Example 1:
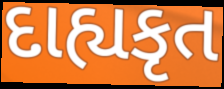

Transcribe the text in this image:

દાહ્યકૃત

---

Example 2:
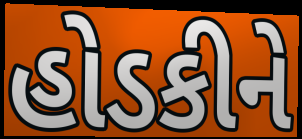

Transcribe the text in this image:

હોડકીને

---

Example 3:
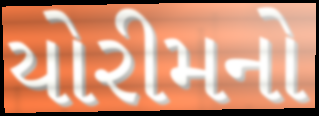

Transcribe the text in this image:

યોરીમનો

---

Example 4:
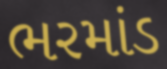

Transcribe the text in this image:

ભરમાંડ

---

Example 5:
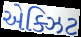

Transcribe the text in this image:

એક્ઝિટ